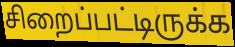
சிறைப்பட்டிருக்க